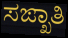
ಸಙ್ಖಾತಿ